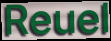
Reuel